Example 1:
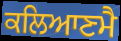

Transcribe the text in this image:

ਕਲਿਆਣਮੈ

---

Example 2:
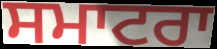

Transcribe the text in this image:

ਸਮਾਟਰਾ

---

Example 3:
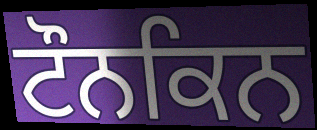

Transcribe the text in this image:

ਟੌਨਕਿਨ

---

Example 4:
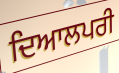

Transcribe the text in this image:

ਦਿਆਲਪਰੀ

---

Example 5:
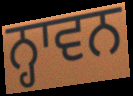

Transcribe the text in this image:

ਨ੍ਹਾਵਨ